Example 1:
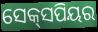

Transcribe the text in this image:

ସେକ୍‍ସପିୟର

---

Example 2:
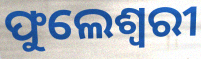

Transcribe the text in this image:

ଫୁଲେଶ୍ବରୀ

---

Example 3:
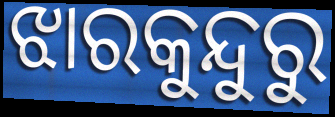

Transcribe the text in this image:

ଝାରକୁନ୍ଦୁରୁ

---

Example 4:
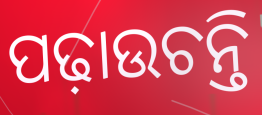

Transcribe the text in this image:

ପଢ଼ାଉଚନ୍ତି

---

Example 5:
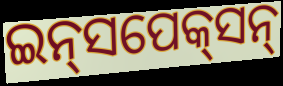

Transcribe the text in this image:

ଇନ୍‌ସପେକ୍‌ସନ୍